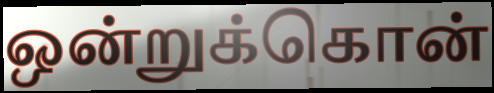
ஒன்றுக்கொன்